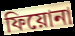
ফিয়োনা